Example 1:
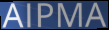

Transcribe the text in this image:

AIPMA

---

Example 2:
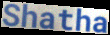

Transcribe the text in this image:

Shatha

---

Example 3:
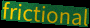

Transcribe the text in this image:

frictional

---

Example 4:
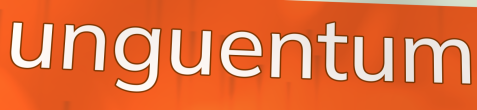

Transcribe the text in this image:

unguentum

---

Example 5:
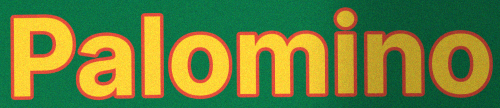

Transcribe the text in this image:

Palomino